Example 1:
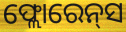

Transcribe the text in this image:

ଫ୍ଲୋରେନ୍‌ସ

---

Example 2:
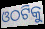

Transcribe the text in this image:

ଓଠଟିକୁ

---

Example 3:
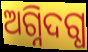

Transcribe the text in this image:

ଅଗ୍ନିଦଗ୍ଧ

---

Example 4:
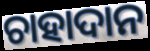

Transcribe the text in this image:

ଚାହାଦାନ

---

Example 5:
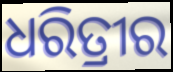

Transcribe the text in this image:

ଧରିତ୍ରୀର